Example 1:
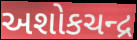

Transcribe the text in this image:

અશોકચન્દ્ર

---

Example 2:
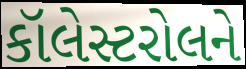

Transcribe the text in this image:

કૉલેસ્ટરોલને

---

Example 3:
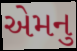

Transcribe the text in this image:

એમનુ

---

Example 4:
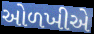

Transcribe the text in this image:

ઓળખીએ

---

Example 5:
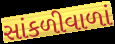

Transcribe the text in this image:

સાંકળીવાળાં